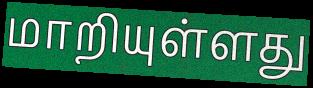
மாறியுள்ளது